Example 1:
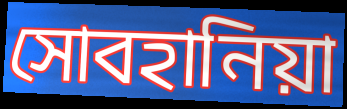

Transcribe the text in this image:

সোবহানিয়া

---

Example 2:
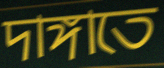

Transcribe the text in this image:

দাঙ্গাতে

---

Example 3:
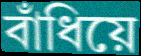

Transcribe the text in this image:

বাঁধিয়ে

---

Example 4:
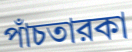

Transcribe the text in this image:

পাঁচতারকা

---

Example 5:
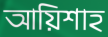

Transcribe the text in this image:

আয়িশাহ